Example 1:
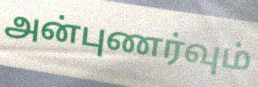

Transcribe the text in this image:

அன்புணர்வும்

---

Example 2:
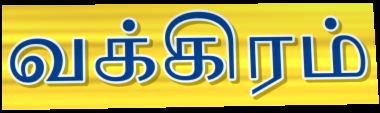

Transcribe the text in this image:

வக்கிரம்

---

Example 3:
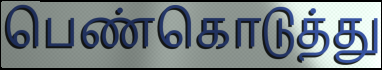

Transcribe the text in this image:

பெண்கொடுத்து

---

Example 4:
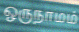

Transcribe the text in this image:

ஒருநாமம்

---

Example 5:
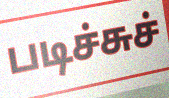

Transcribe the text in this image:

படிச்சுச்